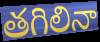
తగిలినా